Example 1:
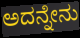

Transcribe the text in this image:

ಅದನ್ನೇನು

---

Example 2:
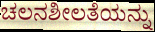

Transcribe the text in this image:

ಚಲನಶೀಲತೆಯನ್ನು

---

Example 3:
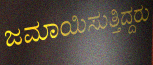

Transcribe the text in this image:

ಜಮಾಯಿಸುತ್ತಿದ್ದರು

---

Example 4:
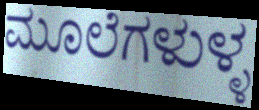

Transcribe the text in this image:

ಮೂಲೆಗಳುಳ್ಳ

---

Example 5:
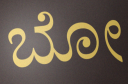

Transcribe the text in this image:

ಬೋ